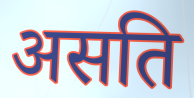
असति